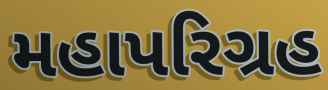
મહાપરિગ્રહ